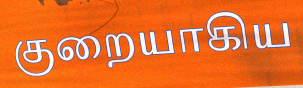
குறையாகிய